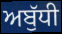
ਅਬੁੱਧੀ